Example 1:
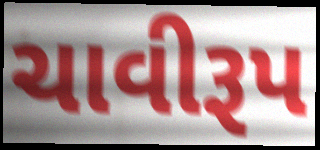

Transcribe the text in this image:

ચાવીરૂપ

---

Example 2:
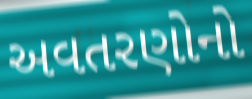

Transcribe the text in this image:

અવતરણોનો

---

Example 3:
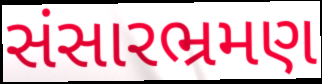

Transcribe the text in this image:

સંસારભ્રમણ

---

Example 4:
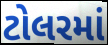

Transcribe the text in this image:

ટોલરમાં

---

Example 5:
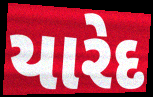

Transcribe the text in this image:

યારેદ